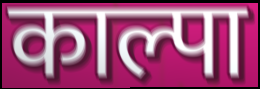
काल्पा